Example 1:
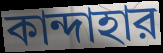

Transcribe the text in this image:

কান্দাহার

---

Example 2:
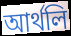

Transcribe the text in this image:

আর্থলি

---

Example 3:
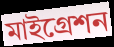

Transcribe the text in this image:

মাইগ্রেশন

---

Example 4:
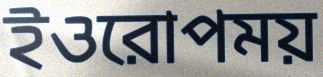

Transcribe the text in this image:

ইওরোপময়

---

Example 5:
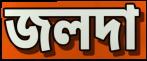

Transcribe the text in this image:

জলদা